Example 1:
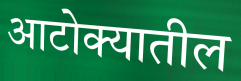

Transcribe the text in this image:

आटोक्यातील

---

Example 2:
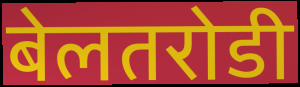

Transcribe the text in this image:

बेलतरोडी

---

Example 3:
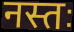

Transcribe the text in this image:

नस्तः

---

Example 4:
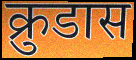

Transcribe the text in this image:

क्रुडास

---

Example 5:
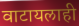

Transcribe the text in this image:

वाटायलाही